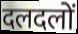
दलदलों